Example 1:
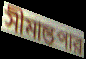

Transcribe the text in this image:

সীমান্তপার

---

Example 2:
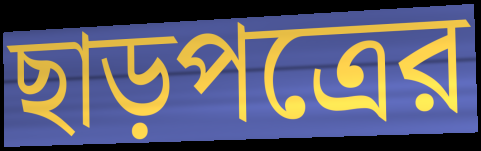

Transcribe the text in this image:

ছাড়পত্রের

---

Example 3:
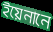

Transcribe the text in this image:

ইয়েনানে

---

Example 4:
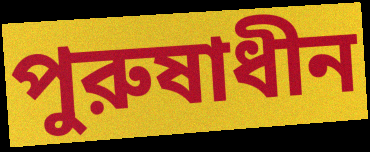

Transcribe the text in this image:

পুরুষাধীন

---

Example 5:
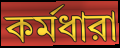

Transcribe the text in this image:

কর্মধারা